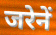
जरेनें